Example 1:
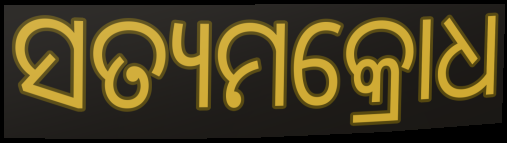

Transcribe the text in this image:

ସତ୍ୟମକ୍ରୋଧ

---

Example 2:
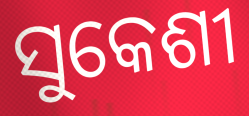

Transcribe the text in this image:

ସୁକେଶୀ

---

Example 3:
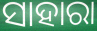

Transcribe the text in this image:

ସାହାରା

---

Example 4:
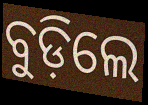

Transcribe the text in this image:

ବୁଡ଼ିଲେ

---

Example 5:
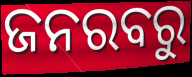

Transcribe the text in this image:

ଜନରବରୁ